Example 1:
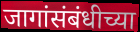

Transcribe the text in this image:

जागांसंबंधीच्या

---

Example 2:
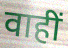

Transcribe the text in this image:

वाहीं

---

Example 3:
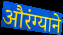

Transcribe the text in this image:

औरंग्याने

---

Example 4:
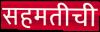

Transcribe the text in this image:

सहमतीची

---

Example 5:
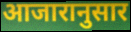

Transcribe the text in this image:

आजारानुसार